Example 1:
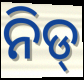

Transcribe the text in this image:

ନିଡ୍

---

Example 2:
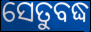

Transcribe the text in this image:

ସେତୁବଦ୍ଧ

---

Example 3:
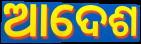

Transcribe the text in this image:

ଆଦେଶ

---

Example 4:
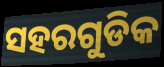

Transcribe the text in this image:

ସହରଗୁଡିକ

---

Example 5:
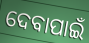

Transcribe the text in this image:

ଦେବାପାଇଁ